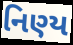
નિણ્ય